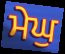
ਮੇਘੁ